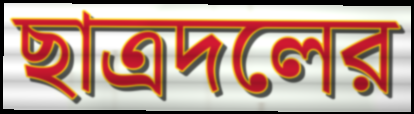
ছাত্রদলের